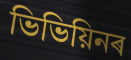
ভিভিয়িনৰ